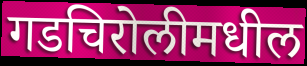
गडचिरोलीमधील